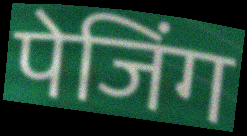
पेजिंग